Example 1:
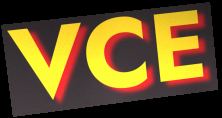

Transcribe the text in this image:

VCE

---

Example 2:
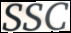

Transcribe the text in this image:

SSC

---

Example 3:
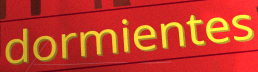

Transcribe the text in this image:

dormientes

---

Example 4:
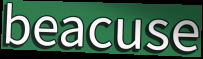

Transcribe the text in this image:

beacuse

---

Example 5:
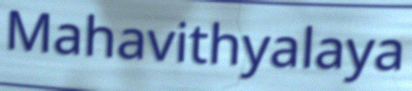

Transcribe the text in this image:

Mahavithyalaya